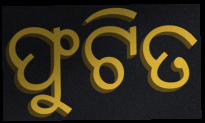
ଫୁଟିତ